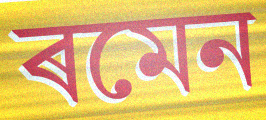
ৰমেন